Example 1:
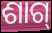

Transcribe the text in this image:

ଶାଗ୍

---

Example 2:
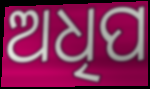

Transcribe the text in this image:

ଅଧିପ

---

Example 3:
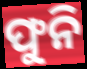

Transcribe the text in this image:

ଫୁନି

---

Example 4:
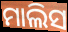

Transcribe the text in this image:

ମାଲିସ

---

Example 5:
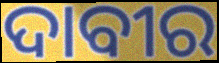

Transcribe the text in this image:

ଦାବୀର